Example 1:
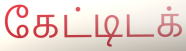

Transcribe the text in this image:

கேட்டிடக்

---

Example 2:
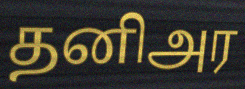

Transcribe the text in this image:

தனிஅர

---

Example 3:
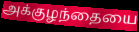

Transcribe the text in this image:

அக்குழந்தையை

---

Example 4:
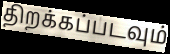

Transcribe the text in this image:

திறக்கப்படவும்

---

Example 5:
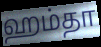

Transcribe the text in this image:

ஹம்தா